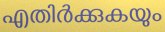
എതിർക്കുകയും